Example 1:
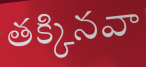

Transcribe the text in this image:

తక్కినవా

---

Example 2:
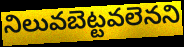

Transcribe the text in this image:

నిలువబెట్టవలెనని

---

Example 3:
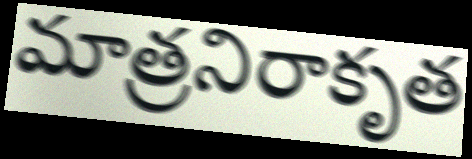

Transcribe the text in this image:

మాత్రనిరాకృత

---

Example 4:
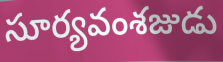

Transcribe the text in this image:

సూర్యవంశజుడు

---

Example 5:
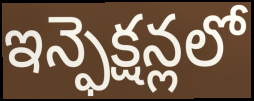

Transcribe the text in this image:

ఇన్ఫెక్షన్లలో